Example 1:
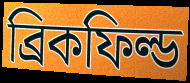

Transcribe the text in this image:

ব্রিকফিল্ড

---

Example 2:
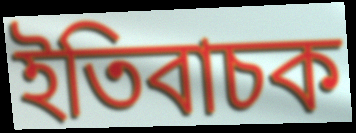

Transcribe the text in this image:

ইতিবাচক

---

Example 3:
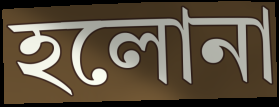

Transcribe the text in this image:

হলোনা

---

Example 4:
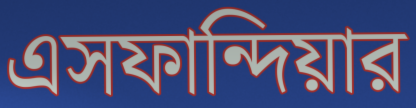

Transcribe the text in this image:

এসফান্দিয়ার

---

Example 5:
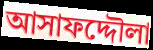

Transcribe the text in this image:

আসাফদ্দৌলা